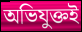
অভিযুক্তই